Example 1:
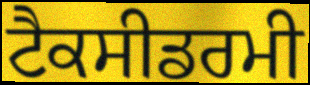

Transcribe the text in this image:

ਟੈਕਸੀਡਰਮੀ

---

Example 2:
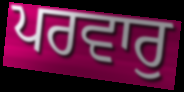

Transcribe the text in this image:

ਪਰਵਾਰੁ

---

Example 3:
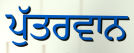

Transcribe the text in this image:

ਪੁੱਤਰਵਾਨ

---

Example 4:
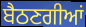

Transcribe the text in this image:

ਬੈਠਣਗੀਆਂ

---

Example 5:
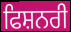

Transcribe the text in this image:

ਫਿਸ਼ਨਰੀ